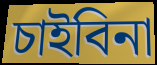
চাইবিনা